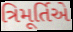
ત્રિમૂર્તિએ